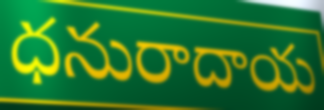
ధనురాదాయ